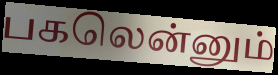
பகலென்னும்